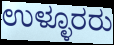
ಉಳ್ಳೂರರು